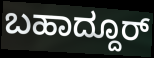
ಬಹಾದ್ದೂರ್